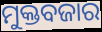
ମୁକ୍ତବଜାର